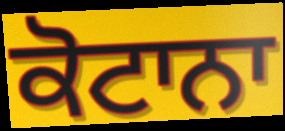
ਕੋਟਾਨਾ